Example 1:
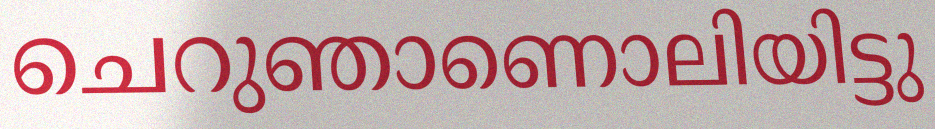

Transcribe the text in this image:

ചെറുഞാണൊലിയിട്ടു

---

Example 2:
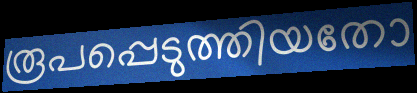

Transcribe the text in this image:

രൂപപ്പെടുത്തിയതോ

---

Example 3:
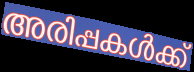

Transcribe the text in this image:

അരിപ്പകൾക്ക്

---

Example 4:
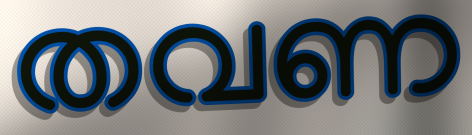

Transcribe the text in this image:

തവണ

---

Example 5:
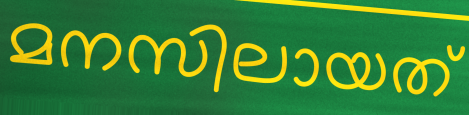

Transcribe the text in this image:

മനസിലായത്